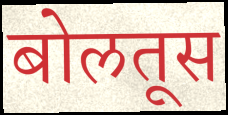
बोलतूस